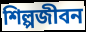
শিল্পজীবন